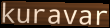
kuravar